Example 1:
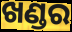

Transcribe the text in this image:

ଖଣ୍ଡର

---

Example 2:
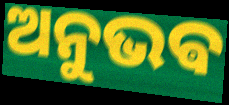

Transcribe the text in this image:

ଅନୁଭଵ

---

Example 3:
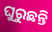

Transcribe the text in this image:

ଘୁରୁଛନ୍ତି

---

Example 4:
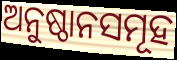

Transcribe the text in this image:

ଅନୁଷ୍ଠାନସମୂହ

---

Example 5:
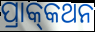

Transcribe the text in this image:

ପ୍ରାକ୍‍କଥନ